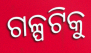
ଗଳ୍ପଟିକୁ